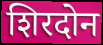
शिरदोन